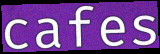
cafes